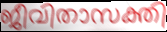
ജീവിതാസക്തി